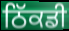
ਠਿੱਕਡੀ